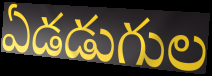
ఏడడుగుల